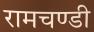
रामचण्डी